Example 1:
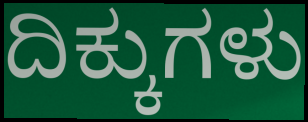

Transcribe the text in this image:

ದಿಕ್ಕುಗಳು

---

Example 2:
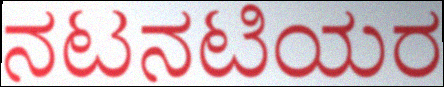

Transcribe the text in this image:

ನಟನಟಿಯರ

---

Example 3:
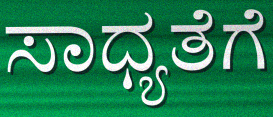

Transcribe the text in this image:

ಸಾಧ್ಯತೆಗೆ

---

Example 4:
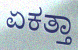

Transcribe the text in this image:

ಏಕತ್ತಾ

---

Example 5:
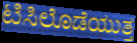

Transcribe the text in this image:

ಟಿಸಿಲೊಡೆಯುತ್ತ